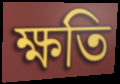
ক্ষতি